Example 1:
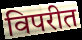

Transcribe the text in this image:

विपरीत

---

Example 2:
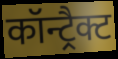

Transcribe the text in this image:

कॉन्ट्रैक्ट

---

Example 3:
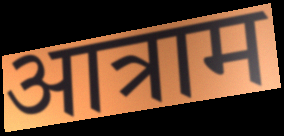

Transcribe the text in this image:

आत्राम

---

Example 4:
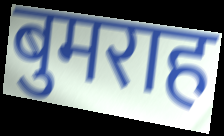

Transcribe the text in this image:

बुमराह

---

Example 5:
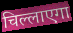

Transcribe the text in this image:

चिल्लाएगा